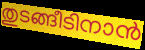
തുടങ്ങീടിനാൻ